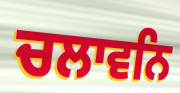
ਚਲਾਵਨਿ